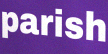
parish